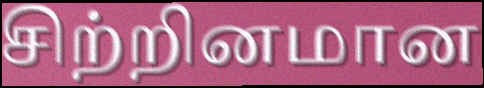
சிற்றினமான